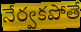
నేర్వకపోతే